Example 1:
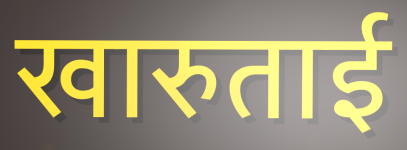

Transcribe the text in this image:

खारुताई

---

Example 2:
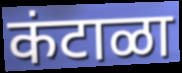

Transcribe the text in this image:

कंटाळा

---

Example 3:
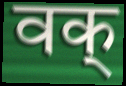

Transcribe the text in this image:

वक्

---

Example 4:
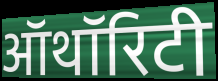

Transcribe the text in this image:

ऑथॉरिटी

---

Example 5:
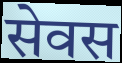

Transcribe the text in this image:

सेवस